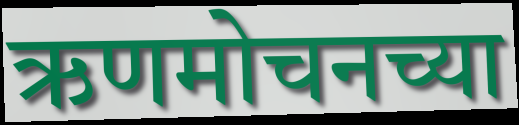
ऋणमोचनच्या